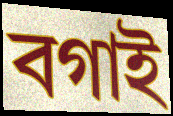
বগাই